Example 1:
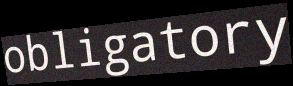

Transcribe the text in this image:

obligatory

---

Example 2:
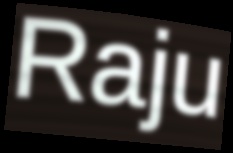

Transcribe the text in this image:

Raju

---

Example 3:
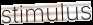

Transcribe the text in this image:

stimulus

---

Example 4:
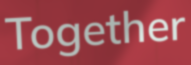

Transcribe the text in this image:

Together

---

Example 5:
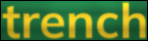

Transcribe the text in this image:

trench